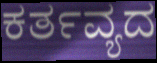
ಕರ್ತವ್ಯದ